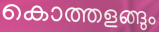
കൊത്തളങ്ങും